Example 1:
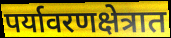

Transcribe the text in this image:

पर्यावरणक्षेत्रात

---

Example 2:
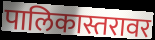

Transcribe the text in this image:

पालिकास्तरावर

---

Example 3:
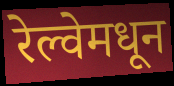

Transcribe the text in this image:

रेल्वेमधून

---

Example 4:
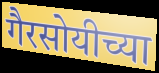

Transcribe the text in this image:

गैरसोयीच्या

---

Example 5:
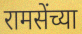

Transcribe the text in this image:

रामसेंच्या